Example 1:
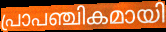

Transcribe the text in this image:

പ്രാപഞ്ചികമായി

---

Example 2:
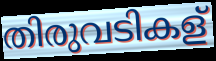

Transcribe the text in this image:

തിരുവടികള്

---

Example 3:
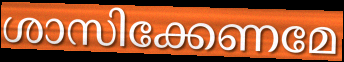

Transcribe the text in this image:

ശാസിക്കേണമേ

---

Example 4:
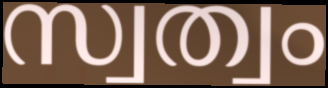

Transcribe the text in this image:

സ്വത്വം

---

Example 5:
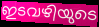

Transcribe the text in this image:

ഇടവഴിയുടെ